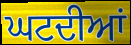
ਘਟਦੀਆਂ